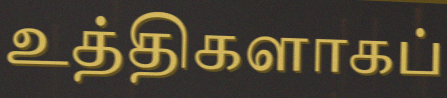
உத்திகளாகப்